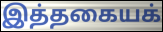
இத்தகையக்